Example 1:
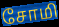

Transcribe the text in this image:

சோமி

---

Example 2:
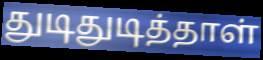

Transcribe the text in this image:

துடிதுடித்தாள்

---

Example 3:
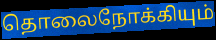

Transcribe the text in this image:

தொலைநோக்கியும்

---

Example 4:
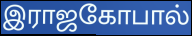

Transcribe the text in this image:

இராஜகோபால்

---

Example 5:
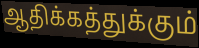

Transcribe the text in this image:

ஆதிக்கத்துக்கும்